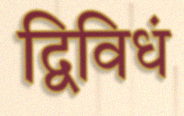
द्विविधं